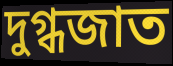
দুগ্ধজাত